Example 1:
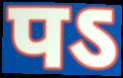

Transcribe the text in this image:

पऽ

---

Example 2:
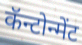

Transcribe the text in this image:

कॅन्टोन्मेंट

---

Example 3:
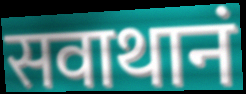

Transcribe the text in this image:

सवाथानं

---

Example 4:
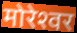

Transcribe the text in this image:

मोरेश्वर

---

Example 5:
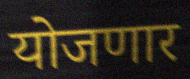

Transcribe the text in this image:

योजणार